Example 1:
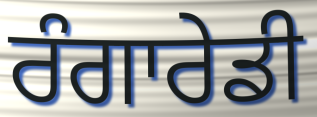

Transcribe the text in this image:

ਰੰਗਾਰੇਡੀ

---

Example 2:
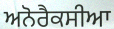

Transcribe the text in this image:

ਅਨੋਰੈਕਸੀਆ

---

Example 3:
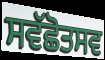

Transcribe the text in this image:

ਸਵੱਛੋਤਸਵ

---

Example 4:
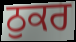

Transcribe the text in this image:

ਠੁਕਰ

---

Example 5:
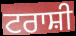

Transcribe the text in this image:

ਟਰਾਸ਼ੀ